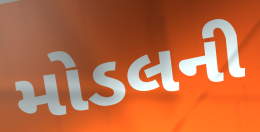
મોડલની